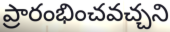
ప్రారంభించవచ్చని